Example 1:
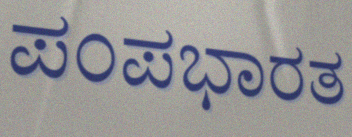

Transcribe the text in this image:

ಪಂಪಭಾರತ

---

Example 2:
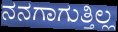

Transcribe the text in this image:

ನನಗಾಗುತ್ತಿಲ್ಲ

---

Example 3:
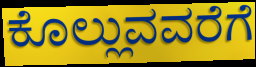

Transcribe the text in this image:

ಕೊಲ್ಲುವವರೆಗೆ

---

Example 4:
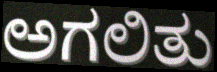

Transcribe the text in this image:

ಅಗಲಿತು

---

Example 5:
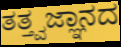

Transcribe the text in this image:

ತತ್ತ್ವಜ್ಞಾನದ